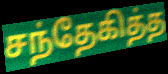
சந்தேகித்த